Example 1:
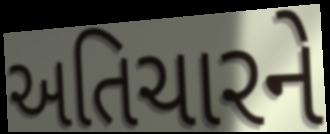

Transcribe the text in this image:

અતિચારને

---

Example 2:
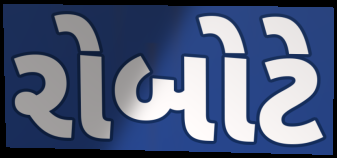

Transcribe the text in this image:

રોબોટે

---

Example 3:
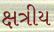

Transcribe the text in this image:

ક્ષત્રીય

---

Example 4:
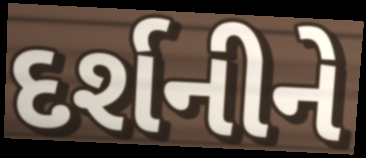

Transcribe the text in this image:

દર્શનીને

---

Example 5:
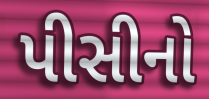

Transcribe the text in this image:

પીસીનો